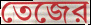
তেজের